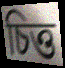
চিত্ত